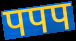
पपप